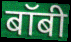
बॉबी